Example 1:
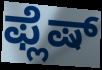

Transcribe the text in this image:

ಫ್ಲೆಷ್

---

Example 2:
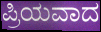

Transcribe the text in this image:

ಪ್ರಿಯವಾದ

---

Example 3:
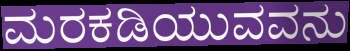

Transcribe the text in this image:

ಮರಕಡಿಯುವವನು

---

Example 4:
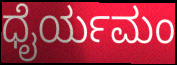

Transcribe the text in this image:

ಧೈರ್ಯಮಂ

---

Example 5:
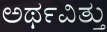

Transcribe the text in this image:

ಅರ್ಥವಿತ್ತು